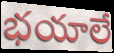
భయాలే